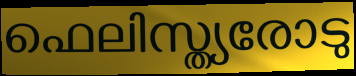
ഫെലിസ്ത്യരോടു